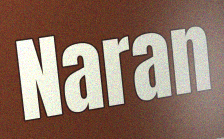
Naran